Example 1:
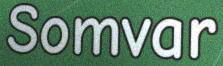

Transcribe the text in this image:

Somvar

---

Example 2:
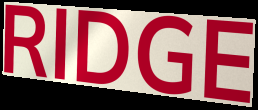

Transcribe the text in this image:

RIDGE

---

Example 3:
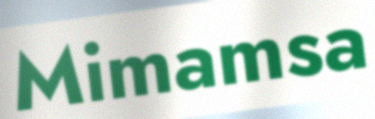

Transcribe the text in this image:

Mimamsa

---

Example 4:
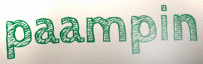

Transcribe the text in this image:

paampin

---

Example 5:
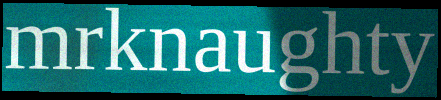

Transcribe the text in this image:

mrknaughty